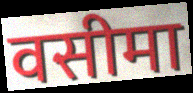
वसीमा